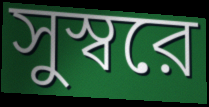
সুস্বরে